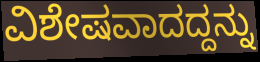
ವಿಶೇಷವಾದದ್ದನ್ನು